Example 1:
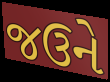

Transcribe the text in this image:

જઉને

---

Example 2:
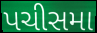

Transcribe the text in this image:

પચીસમા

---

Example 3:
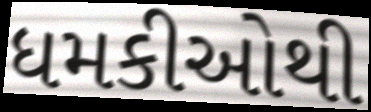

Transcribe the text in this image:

ધમકીઓથી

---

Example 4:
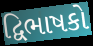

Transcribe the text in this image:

દ્વિભાષકો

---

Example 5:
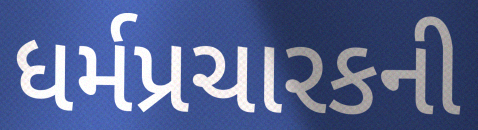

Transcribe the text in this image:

ધર્મપ્રચારકની